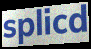
splicd